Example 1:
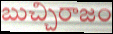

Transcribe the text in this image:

బుచ్చిరాజం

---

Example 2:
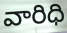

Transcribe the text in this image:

వారిధి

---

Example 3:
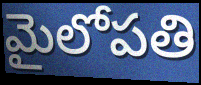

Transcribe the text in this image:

మైలోపతి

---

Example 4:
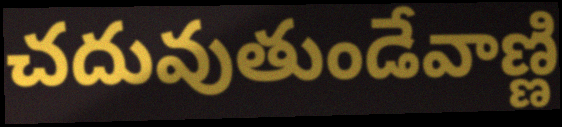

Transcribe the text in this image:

చదువుతుండేవాణ్ణి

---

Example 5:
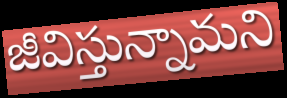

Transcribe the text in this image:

జీవిస్తున్నామని